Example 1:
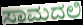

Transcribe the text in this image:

ಸಾಮದಲಿ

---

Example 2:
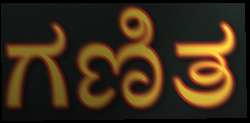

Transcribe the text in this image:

ಗಣಿತ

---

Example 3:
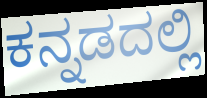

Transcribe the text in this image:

ಕನ್ನಡದಲ್ಲಿ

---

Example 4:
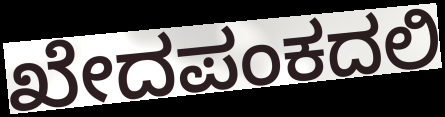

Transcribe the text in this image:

ಖೇದಪಂಕದಲಿ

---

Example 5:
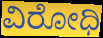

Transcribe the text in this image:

ವಿರೋಧಿ